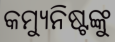
କମ୍ୟୁନିଷ୍ଟଙ୍କୁ